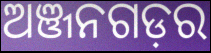
ଅଞ୍ଜନଗଡ଼ର